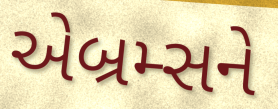
એબ્રમ્સને